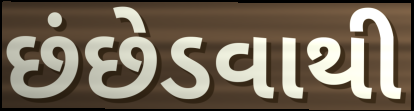
છંછેડવાથી